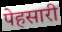
पेहसारी